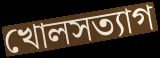
খোলসত্যাগ